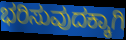
ಭರಿಸುವುದಕ್ಕಾಗಿ